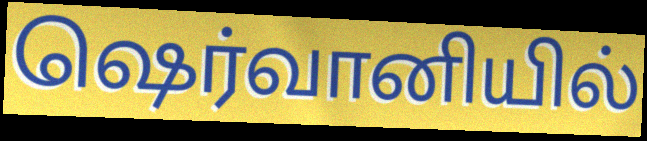
ஷெர்வானியில்